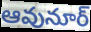
ఆవునూర్